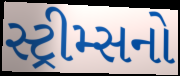
સ્ટ્રીમ્સનો